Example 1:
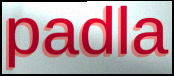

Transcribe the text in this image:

padla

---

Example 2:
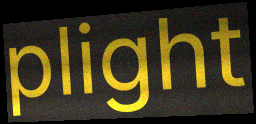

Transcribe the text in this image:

plight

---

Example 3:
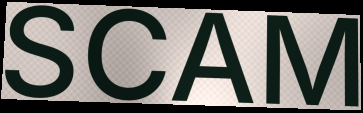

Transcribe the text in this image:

SCAM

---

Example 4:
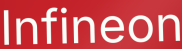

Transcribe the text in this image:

Infineon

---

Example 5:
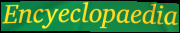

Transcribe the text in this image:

Encyeclopaedia